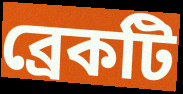
ব্রেকটি